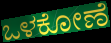
ಒಳಕೋಣೆ